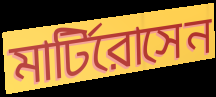
মার্টিরোসেন